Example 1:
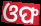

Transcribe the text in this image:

ଓଫ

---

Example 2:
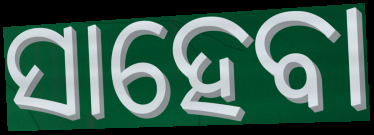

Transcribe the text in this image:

ସାହେବା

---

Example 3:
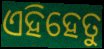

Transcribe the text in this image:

ଏହିହେତୁ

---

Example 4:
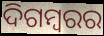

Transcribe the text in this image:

ଦିଗମ୍ୱରର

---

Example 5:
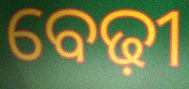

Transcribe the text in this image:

ବେଢ଼ୀ